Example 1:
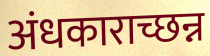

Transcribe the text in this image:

अंधकाराच्छन्न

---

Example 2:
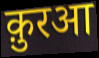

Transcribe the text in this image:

क़ुरआ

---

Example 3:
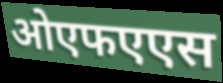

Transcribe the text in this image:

ओएफएएस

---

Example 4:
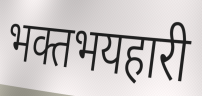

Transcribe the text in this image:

भक्तभयहारी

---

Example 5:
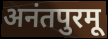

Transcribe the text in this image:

अनंतपुरमू